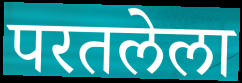
परतलेला